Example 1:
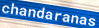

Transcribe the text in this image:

chandaranas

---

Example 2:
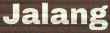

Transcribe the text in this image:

Jalang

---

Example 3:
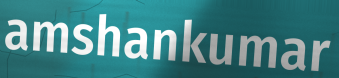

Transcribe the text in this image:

amshankumar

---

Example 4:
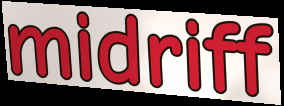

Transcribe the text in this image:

midriff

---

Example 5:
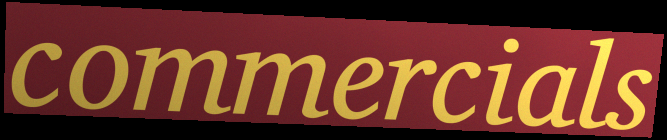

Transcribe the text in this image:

commercials